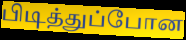
பிடித்துப்போன